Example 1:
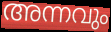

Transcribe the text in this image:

അന്നവും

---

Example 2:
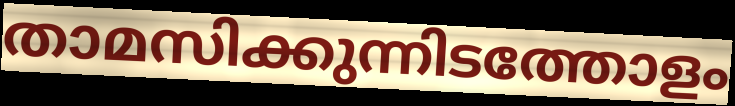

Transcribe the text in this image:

താമസിക്കുന്നിടത്തോളം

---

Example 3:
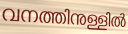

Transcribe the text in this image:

വനത്തിനുള്ളിൽ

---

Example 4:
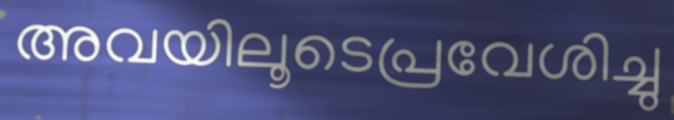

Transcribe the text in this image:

അവയിലൂടെപ്രവേശിച്ചു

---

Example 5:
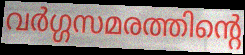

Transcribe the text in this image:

വർഗ്ഗസമരത്തിന്റെ